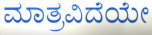
ಮಾತ್ರವಿದೆಯೇ